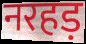
नरहड़